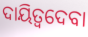
ଦାୟିତ୍ୱଦେବା